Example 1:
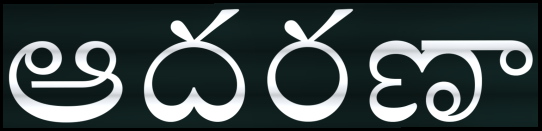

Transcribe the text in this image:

ఆదరణా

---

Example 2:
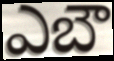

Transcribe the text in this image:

ఎబౌ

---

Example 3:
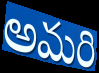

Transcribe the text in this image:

అమరి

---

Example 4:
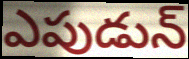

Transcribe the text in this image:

ఎపుడున్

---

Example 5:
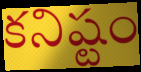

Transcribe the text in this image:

కనిష్టం